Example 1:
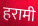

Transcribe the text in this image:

हरामी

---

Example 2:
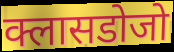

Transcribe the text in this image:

क्लासडोजो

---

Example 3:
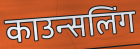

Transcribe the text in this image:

काउन्सलिंग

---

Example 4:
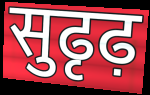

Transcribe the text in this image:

सुढृढ़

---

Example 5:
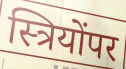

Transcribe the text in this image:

स्त्रियोंपर